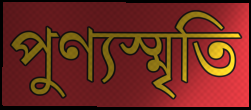
পুণ্যস্মৃতি